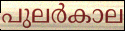
പുലർകാല